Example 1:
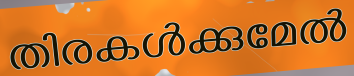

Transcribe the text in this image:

തിരകൾക്കുമേൽ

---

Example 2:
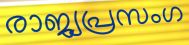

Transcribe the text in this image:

രാജ്യപ്രസംഗ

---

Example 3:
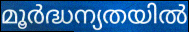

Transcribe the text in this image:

മൂർദ്ധന്യതയിൽ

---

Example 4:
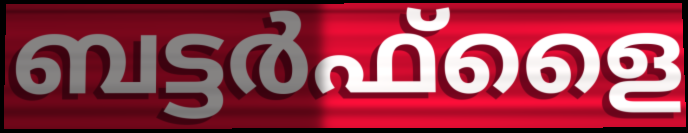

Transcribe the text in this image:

ബട്ടർഫ്ളൈ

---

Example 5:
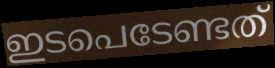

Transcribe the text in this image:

ഇടപെടേണ്ടത്